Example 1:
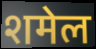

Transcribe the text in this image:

शमेल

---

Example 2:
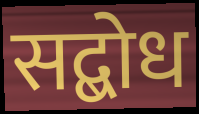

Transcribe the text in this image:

सद्बोध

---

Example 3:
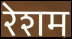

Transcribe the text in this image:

रेशम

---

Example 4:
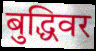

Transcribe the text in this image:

बुद्धिवर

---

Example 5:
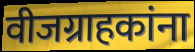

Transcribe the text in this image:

वीजग्राहकांना